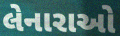
લેનારાઓ